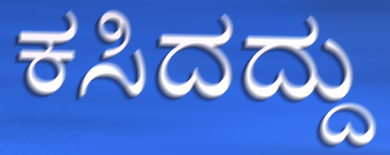
ಕಸಿದದ್ದು